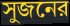
সুজনের